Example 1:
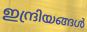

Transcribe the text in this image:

ഇന്ദ്രിയങ്ങൾ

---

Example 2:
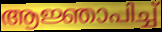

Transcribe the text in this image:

ആജ്ഞാപിച്ച്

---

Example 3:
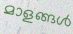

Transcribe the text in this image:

മാളങ്ങൾ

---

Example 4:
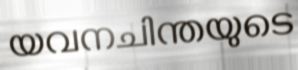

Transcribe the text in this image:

യവനചിന്തയുടെ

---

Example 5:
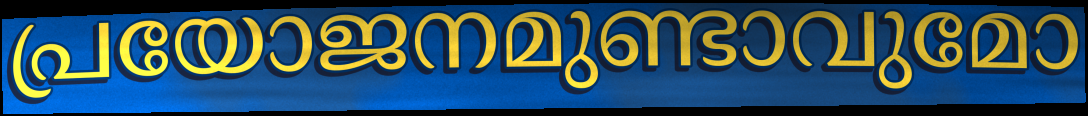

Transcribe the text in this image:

പ്രയോജനമുണ്ടാവുമോ